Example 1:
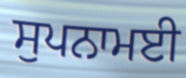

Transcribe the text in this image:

ਸੁਪਨਾਮਈ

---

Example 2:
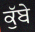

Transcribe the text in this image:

ਕੁੱਬੇ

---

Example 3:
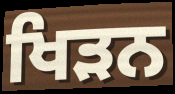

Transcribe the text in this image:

ਖਿੜਨ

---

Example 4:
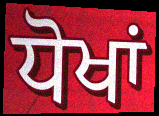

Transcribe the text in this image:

ਧੋਖਾਂ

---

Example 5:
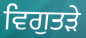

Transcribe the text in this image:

ਵਿਗੁਤੜੇ